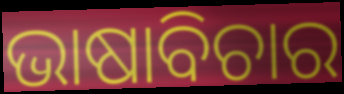
ଭାଷାବିଚାର